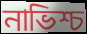
নাভিশ্চ